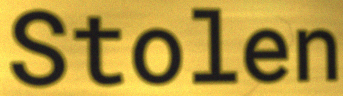
Stolen